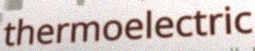
thermoelectric